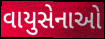
વાયુસેનાઓ